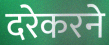
दरेकरने